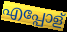
എപ്പോള്